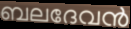
ബലദേവൻ